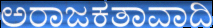
ಅರಾಜಕತಾವಾದಿ